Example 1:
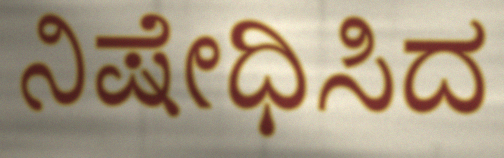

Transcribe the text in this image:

ನಿಷೇಧಿಸಿದ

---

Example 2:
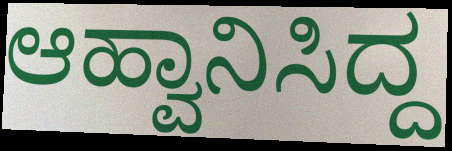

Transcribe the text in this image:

ಆಹ್ವಾನಿಸಿದ್ದ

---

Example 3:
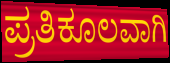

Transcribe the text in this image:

ಪ್ರತಿಕೂಲವಾಗಿ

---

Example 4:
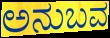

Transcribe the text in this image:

ಅನುಬವ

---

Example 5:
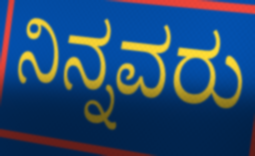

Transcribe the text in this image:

ನಿನ್ನವರು